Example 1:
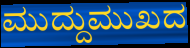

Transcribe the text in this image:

ಮುದ್ದುಮುಖದ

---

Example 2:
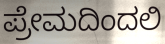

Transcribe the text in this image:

ಪ್ರೇಮದಿಂದಲಿ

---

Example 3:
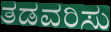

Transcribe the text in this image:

ತಡವರಿಸು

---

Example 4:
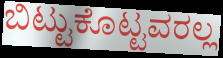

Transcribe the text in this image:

ಬಿಟ್ಟುಕೊಟ್ಟವರಲ್ಲ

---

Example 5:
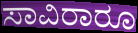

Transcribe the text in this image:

ಸಾವಿರಾರೂ